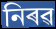
নিৰৱ